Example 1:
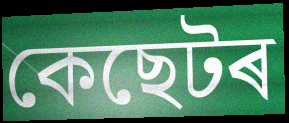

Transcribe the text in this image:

কেছেটৰ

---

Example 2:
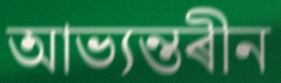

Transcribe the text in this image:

আভ্যন্তৰীন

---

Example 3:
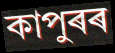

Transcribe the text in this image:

কাপুৰৰ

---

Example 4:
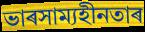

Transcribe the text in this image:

ভাৰসাম্যহীনতাৰ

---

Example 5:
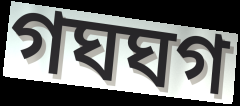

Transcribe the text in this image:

গঘঘগ